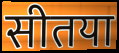
सीतया